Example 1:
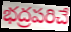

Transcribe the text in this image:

భద్రపరిచే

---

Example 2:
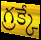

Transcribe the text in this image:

గ్రక్కే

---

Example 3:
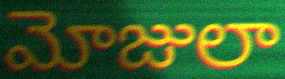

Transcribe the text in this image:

మోజులా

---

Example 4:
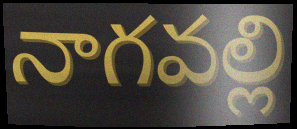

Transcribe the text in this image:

నాగవల్లి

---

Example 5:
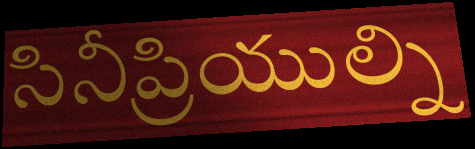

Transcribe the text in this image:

సినీప్రియుల్ని